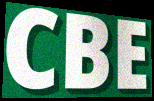
CBE